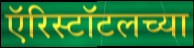
ऍरिस्टॉटलच्या